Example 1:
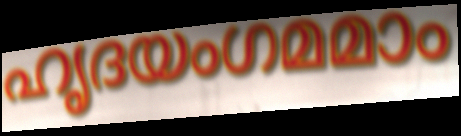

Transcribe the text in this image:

ഹൃദയംഗമമാം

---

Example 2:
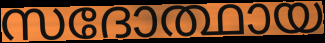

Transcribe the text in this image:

സദോത്ഥായ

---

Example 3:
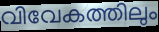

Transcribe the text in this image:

വിവേകത്തിലും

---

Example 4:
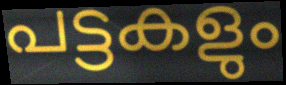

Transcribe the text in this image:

പട്ടകളും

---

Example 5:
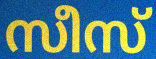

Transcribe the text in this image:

സീസ്